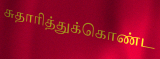
சுதாரித்துக்கொண்ட